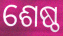
ଶେଷ୍ଠ